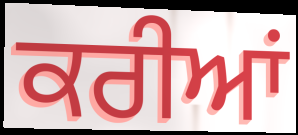
ਕਰੀਆਂ